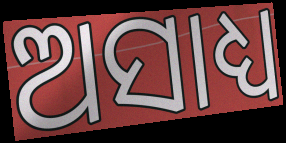
ଅସାଧ୍ୟ